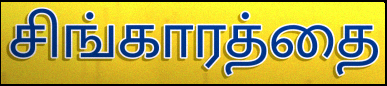
சிங்காரத்தை